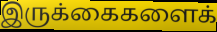
இருக்கைகளைக்